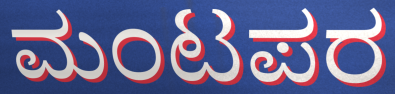
ಮಂಟಪರ